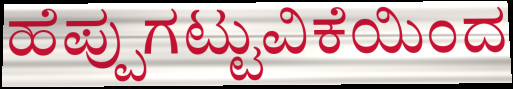
ಹೆಪ್ಪುಗಟ್ಟುವಿಕೆಯಿಂದ